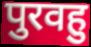
पुरवहु